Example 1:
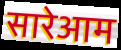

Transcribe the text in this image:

सारेआम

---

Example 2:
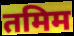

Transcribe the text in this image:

तमिम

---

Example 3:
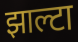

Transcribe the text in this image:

झाल्टा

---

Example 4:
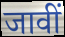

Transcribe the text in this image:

जावीं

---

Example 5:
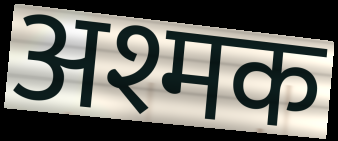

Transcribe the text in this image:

अश्मक